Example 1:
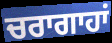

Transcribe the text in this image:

ਚਰਾਗਾਹਾਂ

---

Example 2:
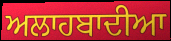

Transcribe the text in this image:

ਅਲਾਹਬਾਦੀਆ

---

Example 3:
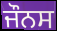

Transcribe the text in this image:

ਜੌਨਸ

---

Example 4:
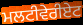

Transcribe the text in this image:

ਮਲਟੀਵੇਰੀਏਟ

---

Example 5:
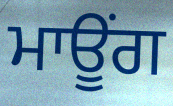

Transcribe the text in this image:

ਮਾਊਂਗ